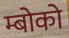
म्बोको